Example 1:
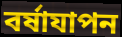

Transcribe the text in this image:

বর্ষাযাপন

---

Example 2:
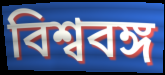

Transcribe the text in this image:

বিশ্ববঙ্গ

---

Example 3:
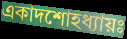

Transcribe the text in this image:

একাদশোহধ্যায়ঃ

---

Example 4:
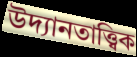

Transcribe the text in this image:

উদ্যানতাত্ত্বিক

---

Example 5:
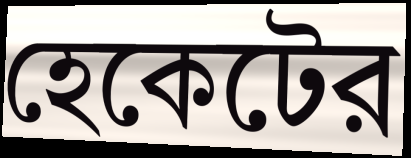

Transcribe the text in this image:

হেকেটের